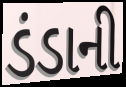
ડંડાની